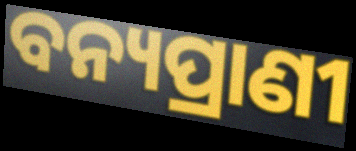
ବନ୍ୟପ୍ରାଣୀ